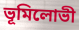
ভূমিলোভী